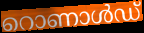
റൊണാൾഡ്